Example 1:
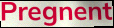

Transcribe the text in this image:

Pregnent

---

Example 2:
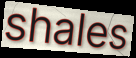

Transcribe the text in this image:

shales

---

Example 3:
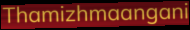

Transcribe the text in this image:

Thamizhmaangani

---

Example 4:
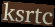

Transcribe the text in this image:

ksrtc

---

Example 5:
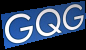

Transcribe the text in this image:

GQG